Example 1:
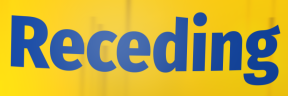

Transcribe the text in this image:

Receding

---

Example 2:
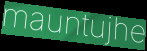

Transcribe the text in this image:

mauntujhe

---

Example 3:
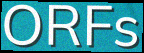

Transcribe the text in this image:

ORFs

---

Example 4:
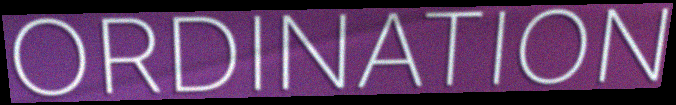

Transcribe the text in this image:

ORDINATION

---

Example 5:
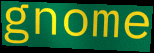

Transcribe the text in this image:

gnome